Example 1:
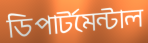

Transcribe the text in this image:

ডিপার্টমেন্টাল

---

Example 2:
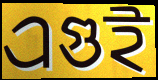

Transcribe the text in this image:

এগুই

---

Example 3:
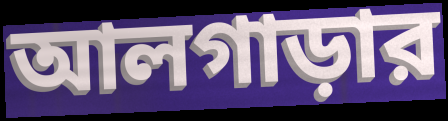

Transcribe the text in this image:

আলগাড়ার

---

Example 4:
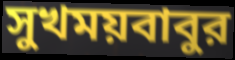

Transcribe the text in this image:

সুখময়বাবুর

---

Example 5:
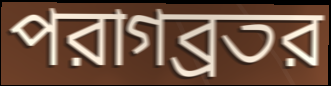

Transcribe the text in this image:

পরাগব্রতর